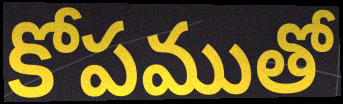
కోపముతో